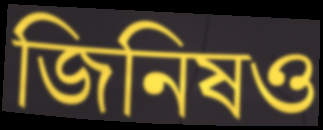
জিনিষও